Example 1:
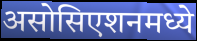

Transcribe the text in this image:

असोसिएशनमध्ये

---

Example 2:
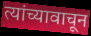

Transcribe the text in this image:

त्यांच्यावाचून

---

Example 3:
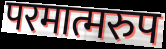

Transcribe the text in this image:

परमात्मरुप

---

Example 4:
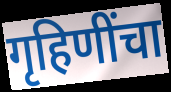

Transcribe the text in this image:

गृहिणींचा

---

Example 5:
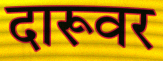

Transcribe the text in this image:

दारूवर